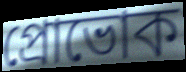
প্রোভোক